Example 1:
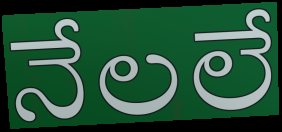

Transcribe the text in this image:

నేలలే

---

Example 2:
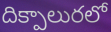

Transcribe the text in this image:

దిక్పాలురలో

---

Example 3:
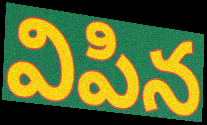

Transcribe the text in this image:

విపిన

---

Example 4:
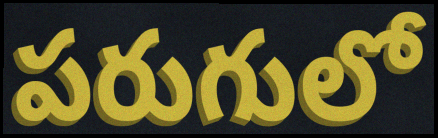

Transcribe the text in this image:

పరుగులో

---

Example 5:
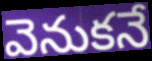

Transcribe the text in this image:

వెనుకనే